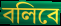
বলিবে